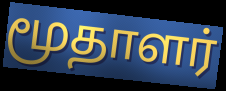
மூதாளர்